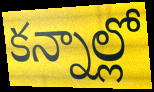
కన్నాల్లో